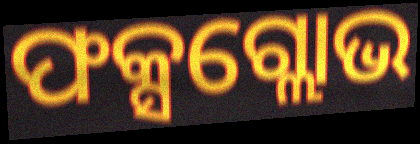
ଫକ୍ସଗ୍ଲୋଭ